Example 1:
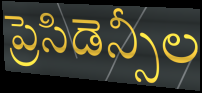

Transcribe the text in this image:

ప్రెసిడెన్సీల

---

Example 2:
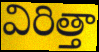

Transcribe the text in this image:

విరిత్తా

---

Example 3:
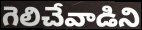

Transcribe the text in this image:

గెలిచేవాడిని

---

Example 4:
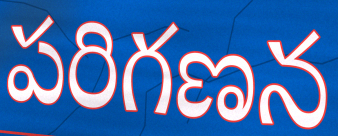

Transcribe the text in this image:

పరిగణన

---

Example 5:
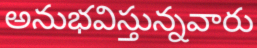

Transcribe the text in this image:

అనుభవిస్తున్నవారు